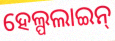
ହେଲ୍ପଲାଇନ୍